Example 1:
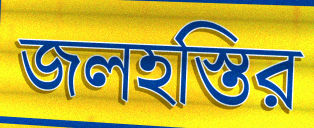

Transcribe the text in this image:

জলহস্তির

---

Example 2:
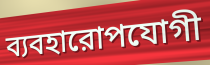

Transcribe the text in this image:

ব্যবহারোপযোগী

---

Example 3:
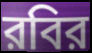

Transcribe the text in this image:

রবির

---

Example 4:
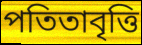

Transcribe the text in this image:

পতিতাবৃত্তি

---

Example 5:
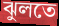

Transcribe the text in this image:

ঝুলতে